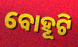
ବୋହୂଟି